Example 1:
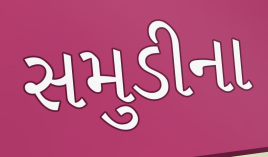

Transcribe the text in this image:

સમુડીના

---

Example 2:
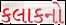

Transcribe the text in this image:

કલાકનો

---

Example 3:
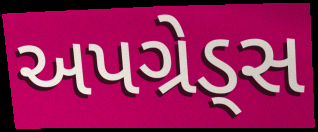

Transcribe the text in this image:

અપગ્રેડ્સ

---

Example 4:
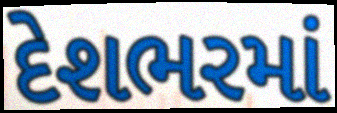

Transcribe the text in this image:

દેશભરમાં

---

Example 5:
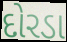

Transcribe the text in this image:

દોરડા